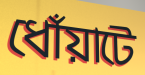
ধোঁয়াটে